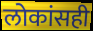
लोकांसही